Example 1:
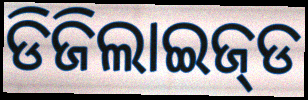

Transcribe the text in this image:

ଡିଜିଲାଇଜ୍‌ଡ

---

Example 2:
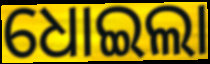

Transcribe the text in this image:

ଧୋଇଲା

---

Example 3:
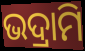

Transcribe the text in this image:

ଭଦ୍ରାମି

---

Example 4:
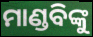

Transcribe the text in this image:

ମାଣ୍ଡବିଙ୍କୁ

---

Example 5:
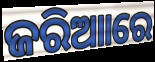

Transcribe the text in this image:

ଜରିଆାରେ